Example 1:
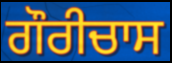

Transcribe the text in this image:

ਗੌਰੀਚਾਸ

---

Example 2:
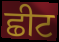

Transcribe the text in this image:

ਛੀਟ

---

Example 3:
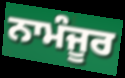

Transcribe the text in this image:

ਨਾਮੰਜੂਰ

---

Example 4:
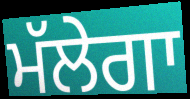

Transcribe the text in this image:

ਮੱਲੇਗਾ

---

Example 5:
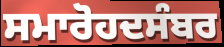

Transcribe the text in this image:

ਸਮਾਰੋਹਦਸੰਬਰ